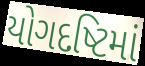
યોગદષ્ટિમાં